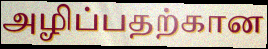
அழிப்பதற்கான